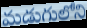
మడుగులోని